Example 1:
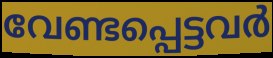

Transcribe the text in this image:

വേണ്ടപ്പെട്ടവർ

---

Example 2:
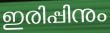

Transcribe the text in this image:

ഇരിപ്പിനും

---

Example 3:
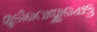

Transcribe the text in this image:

മൂടിവെയ്ക്കപ്പെട്ട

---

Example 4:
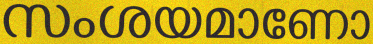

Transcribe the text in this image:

സംശയമാണോ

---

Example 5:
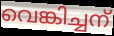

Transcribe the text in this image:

വെങ്കിച്ചന്